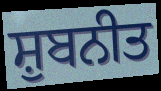
ਸ਼ੁਬਨੀਤ